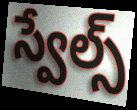
స్వేల్స్